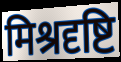
मिश्रदृष्टि